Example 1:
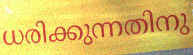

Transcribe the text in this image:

ധരിക്കുന്നതിനു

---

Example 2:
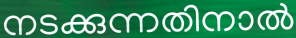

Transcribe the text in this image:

നടക്കുന്നതിനാൽ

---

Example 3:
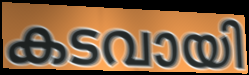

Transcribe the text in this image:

കടവായി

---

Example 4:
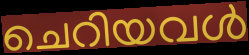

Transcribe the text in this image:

ചെറിയവൾ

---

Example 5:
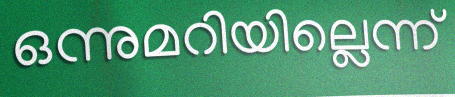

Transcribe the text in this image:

ഒന്നുമറിയില്ലെന്ന്